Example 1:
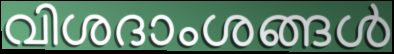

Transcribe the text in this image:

വിശദാംശങ്ങൾ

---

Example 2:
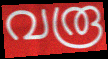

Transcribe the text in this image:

വരൂ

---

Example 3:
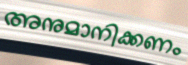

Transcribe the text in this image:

അനുമാനിക്കണം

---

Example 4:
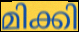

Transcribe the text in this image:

മിക്കി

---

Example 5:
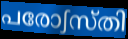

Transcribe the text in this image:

പരോഽസ്തി